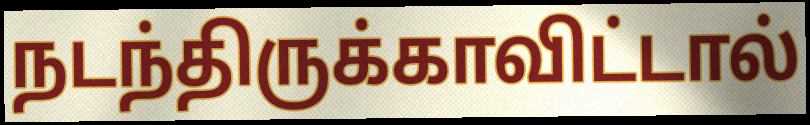
நடந்திருக்காவிட்டால்